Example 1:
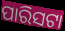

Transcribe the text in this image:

ପାରିସଟା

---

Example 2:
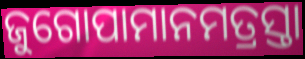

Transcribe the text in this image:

ଜୁଗୋପାମାନମତ୍ରସ୍ତା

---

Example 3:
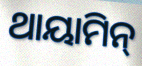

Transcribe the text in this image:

ଥାୟାମିନ୍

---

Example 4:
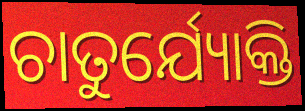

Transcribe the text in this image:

ଚାତୁର୍ଯ୍ୟୋକ୍ତି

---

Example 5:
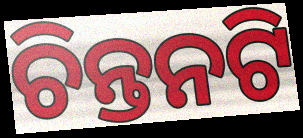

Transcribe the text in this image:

ଚିନ୍ତନଟି